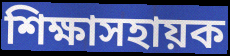
শিক্ষাসহায়ক